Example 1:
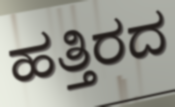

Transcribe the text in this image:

ಹತ್ತಿರದ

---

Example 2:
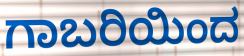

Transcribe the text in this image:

ಗಾಬರಿಯಿಂದ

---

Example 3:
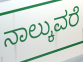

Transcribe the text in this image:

ನಾಲ್ಕುವರೆ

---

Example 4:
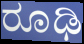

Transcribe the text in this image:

ರೂಢಿ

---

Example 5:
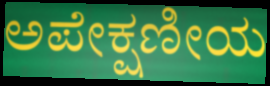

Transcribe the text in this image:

ಅಪೇಕ್ಷಣೀಯ